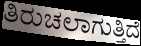
ತಿರುಚಲಾಗುತ್ತಿದೆ